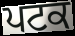
ਪਟਕ